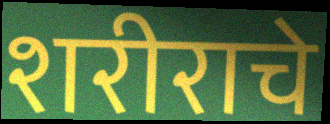
शरीराचे